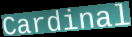
Cardinal